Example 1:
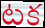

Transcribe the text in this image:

టక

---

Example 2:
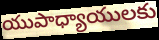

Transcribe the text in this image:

యుపాధ్యాయులకు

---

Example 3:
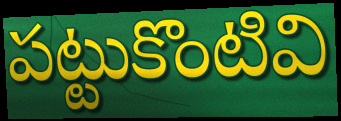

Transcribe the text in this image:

పట్టుకొంటివి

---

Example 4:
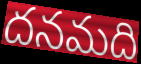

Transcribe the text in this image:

దనమది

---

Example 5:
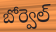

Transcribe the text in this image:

బోర్వెల్